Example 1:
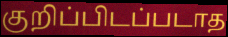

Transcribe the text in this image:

குறிப்பிடப்படாத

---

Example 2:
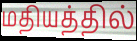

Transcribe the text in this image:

மதியத்தில்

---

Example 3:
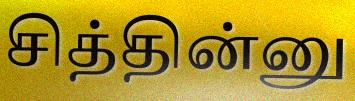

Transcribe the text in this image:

சித்தின்னு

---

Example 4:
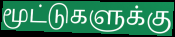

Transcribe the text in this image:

மூட்டுகளுக்கு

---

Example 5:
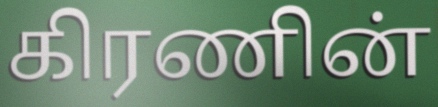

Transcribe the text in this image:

கிரணின்